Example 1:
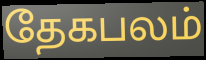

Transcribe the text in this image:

தேகபலம்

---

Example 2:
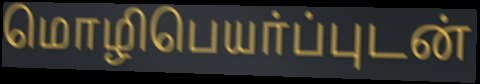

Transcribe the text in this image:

மொழிபெயர்ப்புடன்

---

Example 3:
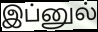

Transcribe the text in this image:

இப்னுல்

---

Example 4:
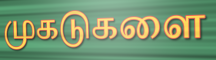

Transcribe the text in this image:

முகடுகளை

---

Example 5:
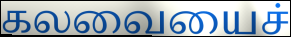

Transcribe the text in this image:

கலவையைச்